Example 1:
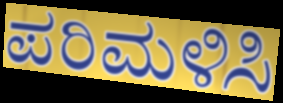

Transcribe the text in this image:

ಪರಿಮಳಿಸಿ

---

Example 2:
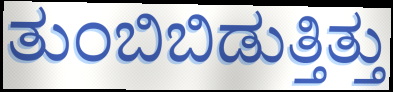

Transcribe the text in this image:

ತುಂಬಿಬಿಡುತ್ತಿತ್ತು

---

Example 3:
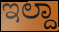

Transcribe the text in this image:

ಇಲ್ದಾ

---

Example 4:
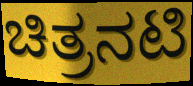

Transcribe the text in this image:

ಚಿತ್ರನಟಿ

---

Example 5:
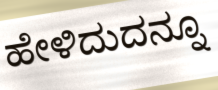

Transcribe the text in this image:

ಹೇಳಿದುದನ್ನೂ